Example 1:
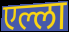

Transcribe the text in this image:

एल्ला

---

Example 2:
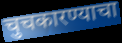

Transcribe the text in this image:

चुचकारण्याचा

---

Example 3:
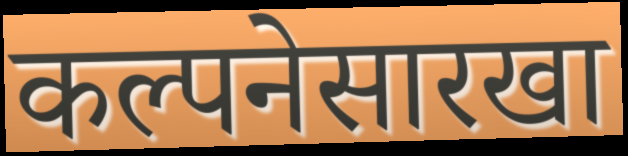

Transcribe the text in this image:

कल्पनेसारखा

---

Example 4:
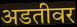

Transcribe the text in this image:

अडतीवर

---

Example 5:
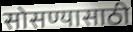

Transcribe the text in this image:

सोसण्यासाठी